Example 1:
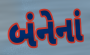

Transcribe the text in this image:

બંનેનાં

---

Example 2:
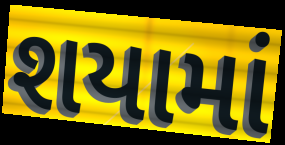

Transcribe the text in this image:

શયામાં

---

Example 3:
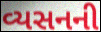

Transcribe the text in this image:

વ્યસનની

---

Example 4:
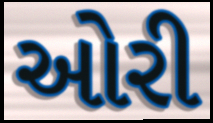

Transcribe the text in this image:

ઓરી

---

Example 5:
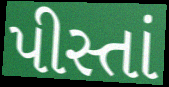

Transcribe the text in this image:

પીસ્તાં